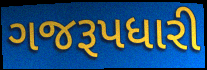
ગજરૂપધારી